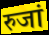
रुजां